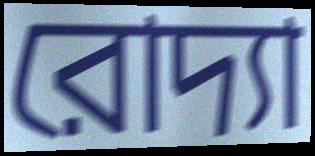
রোদ্যা